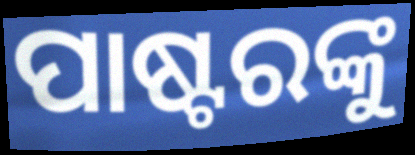
ପାଷ୍ଟରଙ୍କୁ